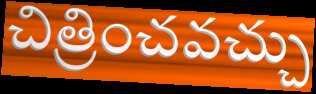
చిత్రించవచ్చు